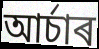
আৰ্চাৰ